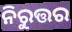
ନିରୁତ୍ତର